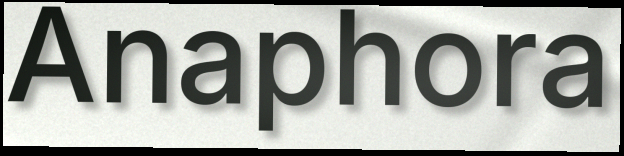
Anaphora